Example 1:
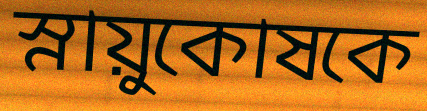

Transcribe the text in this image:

স্নায়ুকোষকে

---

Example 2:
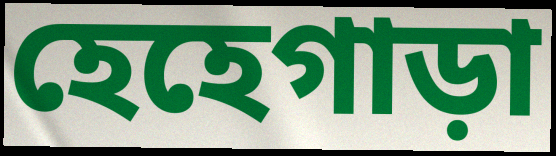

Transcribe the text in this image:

হেহেগাড়া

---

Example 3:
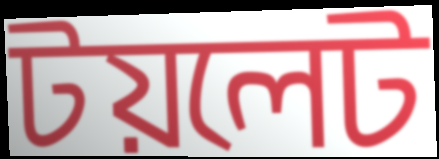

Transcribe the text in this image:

টয়লেট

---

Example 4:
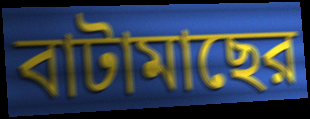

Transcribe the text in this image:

বাটামাছের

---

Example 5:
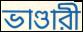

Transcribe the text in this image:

ভাণ্ডারী